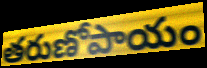
తరుణోపాయం